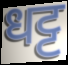
धट्ट